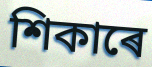
শিকাৰে